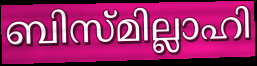
ബിസ്മില്ലാഹി